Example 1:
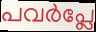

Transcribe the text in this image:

പവർപ്ലേ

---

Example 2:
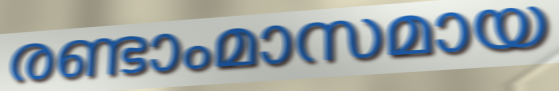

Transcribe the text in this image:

രണ്ടാംമാസമായ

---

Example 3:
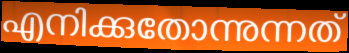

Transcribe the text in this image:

എനിക്കുതോന്നുന്നത്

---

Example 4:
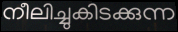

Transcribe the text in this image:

നീലിച്ചുകിടക്കുന്ന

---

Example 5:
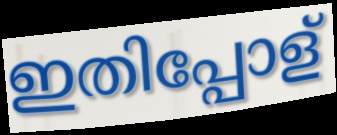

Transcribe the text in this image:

ഇതിപ്പോള്